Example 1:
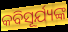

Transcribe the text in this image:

କବିସୂର୍ଯ୍ୟଙ୍କ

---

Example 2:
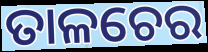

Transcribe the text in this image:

ତାଳଚେର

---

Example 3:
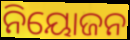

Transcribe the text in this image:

ନିୟୋଜନ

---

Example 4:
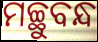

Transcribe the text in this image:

ମଚ୍ଛୁବନ୍ଧ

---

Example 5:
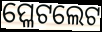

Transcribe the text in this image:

ପ୍ଳେଟଲେଟ